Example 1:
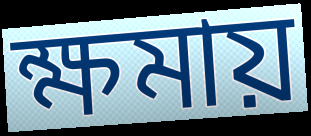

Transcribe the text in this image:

ক্ষমায়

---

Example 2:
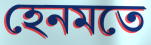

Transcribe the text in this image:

হেনমতে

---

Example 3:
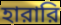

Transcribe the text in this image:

হারারি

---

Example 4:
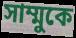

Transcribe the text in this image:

সাম্মুকে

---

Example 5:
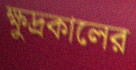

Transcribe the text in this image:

ক্ষুদ্রকালের